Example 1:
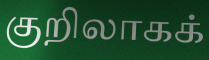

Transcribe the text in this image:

குறிலாகக்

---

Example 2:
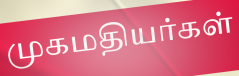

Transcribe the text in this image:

முகமதியர்கள்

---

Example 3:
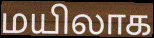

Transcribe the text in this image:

மயிலாக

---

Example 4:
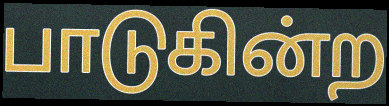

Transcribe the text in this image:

பாடுகின்ற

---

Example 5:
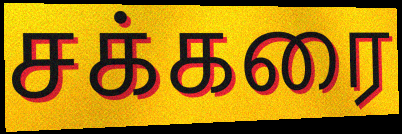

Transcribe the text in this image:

சக்கரை